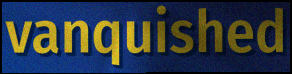
vanquished